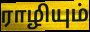
ராழியும்